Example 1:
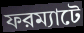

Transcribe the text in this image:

ফরম্যাটে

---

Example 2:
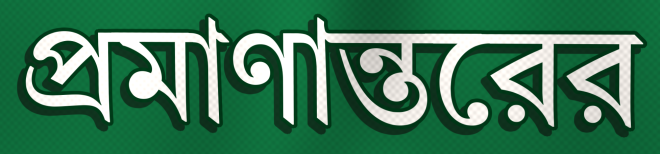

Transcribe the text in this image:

প্রমাণান্তরের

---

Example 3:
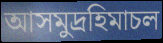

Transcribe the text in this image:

আসমুদ্রহিমাচল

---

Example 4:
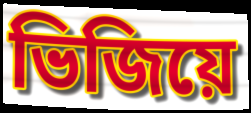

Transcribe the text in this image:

ভিজিয়ে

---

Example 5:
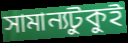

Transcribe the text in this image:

সামান্যটুকুই